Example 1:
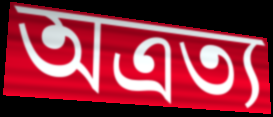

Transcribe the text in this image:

অত্রত্য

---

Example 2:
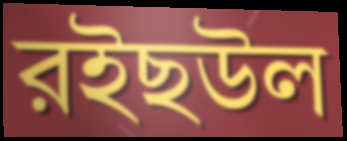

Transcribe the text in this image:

রইছউল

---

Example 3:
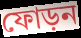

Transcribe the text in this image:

ফোড়ন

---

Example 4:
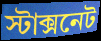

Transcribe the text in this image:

স্টাক্সনেট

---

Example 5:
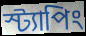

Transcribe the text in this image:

স্ট্যাপিং